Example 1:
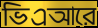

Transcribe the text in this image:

ভিএআরে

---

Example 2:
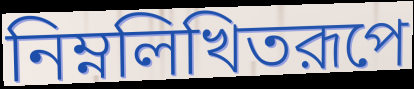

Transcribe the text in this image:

নিম্নলিখিতরূপে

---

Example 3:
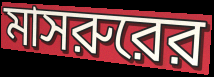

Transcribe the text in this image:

মাসরুরের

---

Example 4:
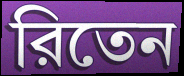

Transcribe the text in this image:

রিতেন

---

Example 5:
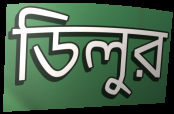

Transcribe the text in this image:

ডিলুর